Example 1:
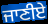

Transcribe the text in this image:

ਜਾਣੀਏ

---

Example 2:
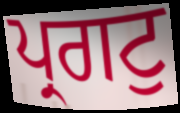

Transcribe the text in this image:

ਪ੍ਰਗਟੁ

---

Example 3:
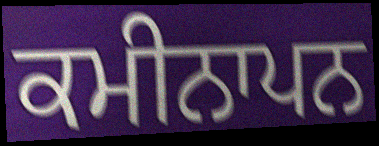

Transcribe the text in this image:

ਕਮੀਨਾਪਨ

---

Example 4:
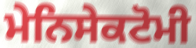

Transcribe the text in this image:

ਮੇਨਿਸੇਕਟੋਮੀ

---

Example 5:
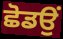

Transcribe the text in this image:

ਛੋਡਉਂ